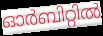
ഓർബിറ്റിൽ